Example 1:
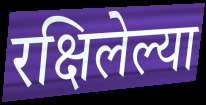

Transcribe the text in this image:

रक्षिलेल्या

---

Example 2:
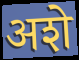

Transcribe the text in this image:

अशे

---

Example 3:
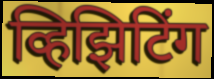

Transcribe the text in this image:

व्हिझिटिंग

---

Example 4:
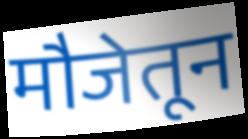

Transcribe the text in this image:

मौजेतून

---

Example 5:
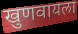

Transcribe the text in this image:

खुणवायला